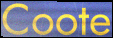
Coote